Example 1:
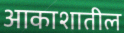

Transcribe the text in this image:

आकाशातील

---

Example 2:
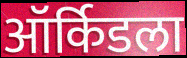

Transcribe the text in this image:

ऑर्किडला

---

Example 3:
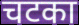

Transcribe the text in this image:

चटका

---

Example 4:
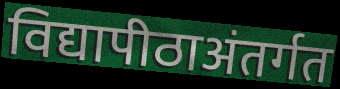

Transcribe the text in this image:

विद्यापीठाअंतर्गत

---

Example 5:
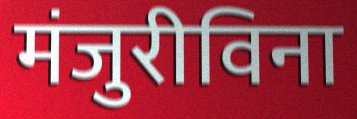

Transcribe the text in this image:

मंजुरीविना